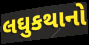
લઘુકથાનો